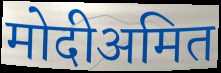
मोदीअमित